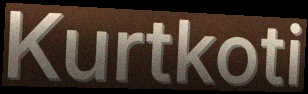
Kurtkoti